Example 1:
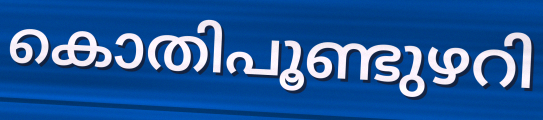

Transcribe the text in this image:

കൊതിപൂണ്ടുഴറി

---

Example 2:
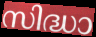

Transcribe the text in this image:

സിദ്ധാ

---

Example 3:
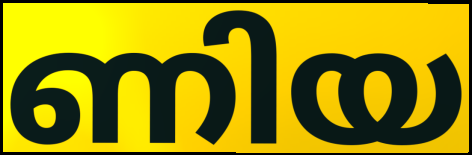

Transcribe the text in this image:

ണിയ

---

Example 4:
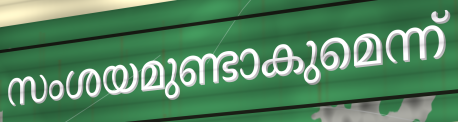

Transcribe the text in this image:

സംശയമുണ്ടാകുമെന്ന്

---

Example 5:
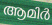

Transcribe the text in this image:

ആമിർ